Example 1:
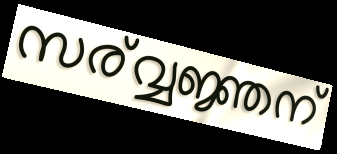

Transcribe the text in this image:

സര്വ്വജ്ഞന്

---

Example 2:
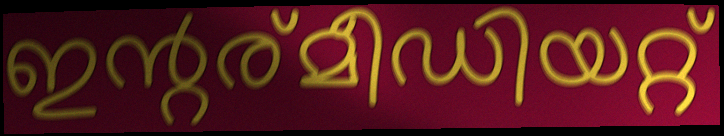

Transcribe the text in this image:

ഇന്റര്മീഡിയറ്റ്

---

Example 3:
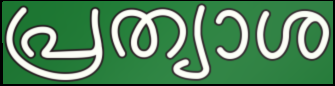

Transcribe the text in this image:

പ്രത്യാശ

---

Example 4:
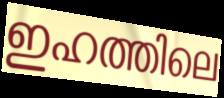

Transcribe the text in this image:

ഇഹത്തിലെ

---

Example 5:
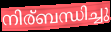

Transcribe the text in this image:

നിര്ബന്ധിച്ചു